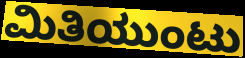
ಮಿತಿಯುಂಟು